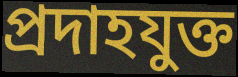
প্রদাহযুক্ত